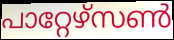
പാറ്റേഴ്സൺ